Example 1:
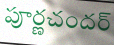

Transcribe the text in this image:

పూర్ణచందర్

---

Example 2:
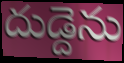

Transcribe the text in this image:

దుడ్దెను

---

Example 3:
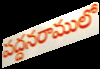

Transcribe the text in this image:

పద్దనరాములో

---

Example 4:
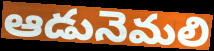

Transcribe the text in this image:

ఆడునెమలి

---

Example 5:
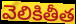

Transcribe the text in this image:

వెలికితీత